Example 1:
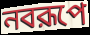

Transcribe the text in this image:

নবরূপে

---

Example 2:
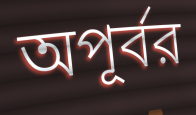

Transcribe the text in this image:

অপূর্বর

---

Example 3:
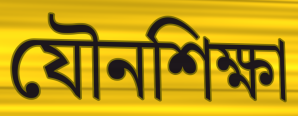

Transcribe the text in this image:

যৌনশিক্ষা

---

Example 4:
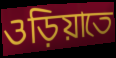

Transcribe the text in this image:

ওড়িয়াতে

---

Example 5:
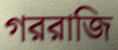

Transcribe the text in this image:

গররাজি